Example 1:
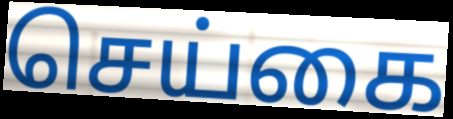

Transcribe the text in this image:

செய்கை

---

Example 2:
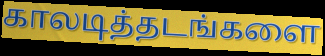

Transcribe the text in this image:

காலடித்தடங்களை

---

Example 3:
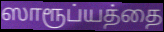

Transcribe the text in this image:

ஸாரூப்யத்தை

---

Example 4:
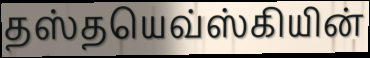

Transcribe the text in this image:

தஸ்தயெவ்ஸ்கியின்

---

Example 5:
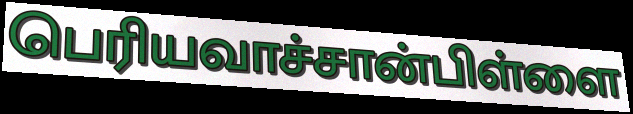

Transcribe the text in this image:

பெரியவாச்சான்பிள்ளை